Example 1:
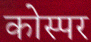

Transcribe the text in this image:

कोस्पर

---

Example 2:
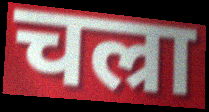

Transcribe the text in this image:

चल्रा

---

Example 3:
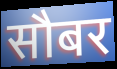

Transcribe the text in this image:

सौबर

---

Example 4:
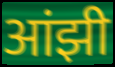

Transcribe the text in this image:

आंझी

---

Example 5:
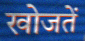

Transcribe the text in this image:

खोजतें